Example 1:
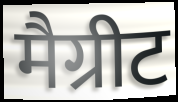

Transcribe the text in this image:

मैग्रीट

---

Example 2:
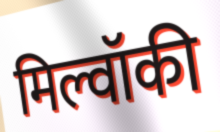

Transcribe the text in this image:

मिल्वॉकी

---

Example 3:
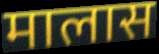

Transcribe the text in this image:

मालास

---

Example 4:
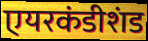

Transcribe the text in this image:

एयरकंडीशंड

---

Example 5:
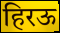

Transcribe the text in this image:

हिरऊ